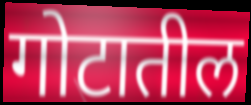
गोटातील